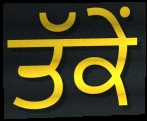
ਤੱਕੇਂ